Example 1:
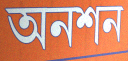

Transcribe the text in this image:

অনশন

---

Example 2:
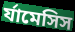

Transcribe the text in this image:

র্যামেসিস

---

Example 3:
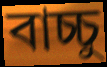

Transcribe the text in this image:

বাচ্চু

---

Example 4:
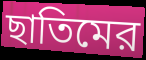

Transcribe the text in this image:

ছাতিমের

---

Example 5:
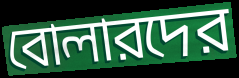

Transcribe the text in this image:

বোলারদের